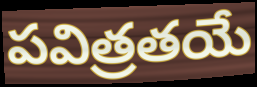
పవిత్రతయే